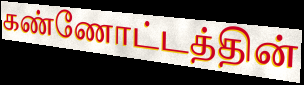
கண்ணோட்டத்தின்